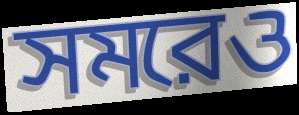
সমরেও